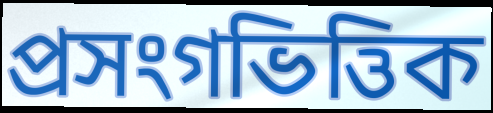
প্ৰসংগভিত্তিক